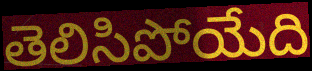
తెలిసిపోయేది